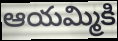
ఆయమ్మికి